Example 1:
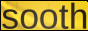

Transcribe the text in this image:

sooth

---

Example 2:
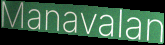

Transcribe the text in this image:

Manavalan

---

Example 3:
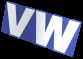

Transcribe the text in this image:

VW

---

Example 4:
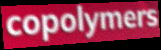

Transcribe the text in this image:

copolymers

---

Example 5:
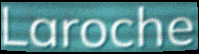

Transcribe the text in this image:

Laroche